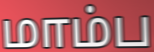
மாம்ப